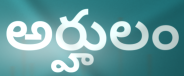
అర్హులం